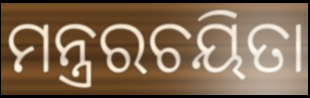
ମନ୍ତ୍ରରଚୟିତା